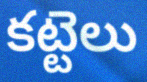
కట్టెలు